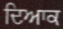
ਦਿਆਕ